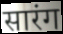
सारंग